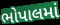
ભોપાલમાં